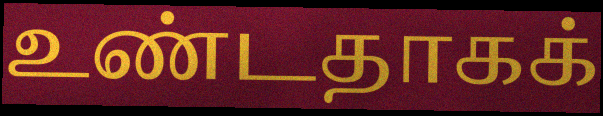
உண்டதாகக்